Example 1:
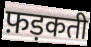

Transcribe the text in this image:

फ़ड़कती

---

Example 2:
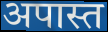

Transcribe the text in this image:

अपास्‍त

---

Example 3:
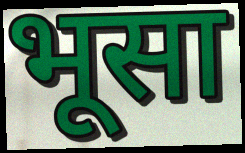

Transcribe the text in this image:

भूसा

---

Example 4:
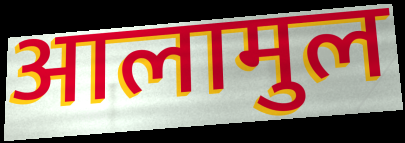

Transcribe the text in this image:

आलामुल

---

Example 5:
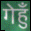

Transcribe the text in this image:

गेहुँ